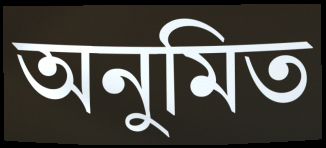
অনুমিত